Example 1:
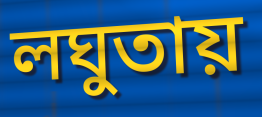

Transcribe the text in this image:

লঘুতায়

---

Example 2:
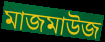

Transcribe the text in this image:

মাজমাউজ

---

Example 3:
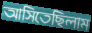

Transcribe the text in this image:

আসিতেছিলাম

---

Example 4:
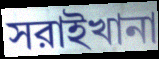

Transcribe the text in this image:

সরাইখানা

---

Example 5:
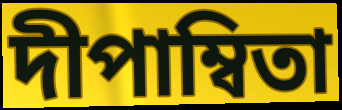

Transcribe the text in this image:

দীপাম্বিতা